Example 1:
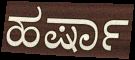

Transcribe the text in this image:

ಹರ್ಷಾ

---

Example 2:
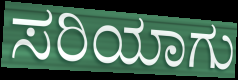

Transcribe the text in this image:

ಸರಿಯಾಗು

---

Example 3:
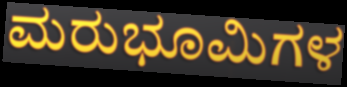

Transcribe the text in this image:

ಮರುಭೂಮಿಗಳ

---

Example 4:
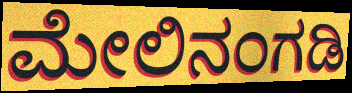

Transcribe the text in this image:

ಮೇಲಿನಂಗಡಿ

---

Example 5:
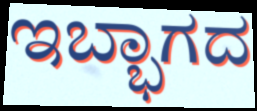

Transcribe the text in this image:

ಇಬ್ಭಾಗದ